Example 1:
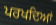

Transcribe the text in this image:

ਪਰਖਦਿਆਂ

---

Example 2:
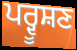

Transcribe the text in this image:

ਪਰ੍ਦੂਸ਼ਣ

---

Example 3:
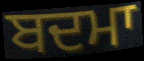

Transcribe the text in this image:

ਬਦਮਾ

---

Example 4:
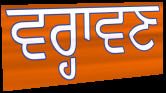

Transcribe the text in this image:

ਵਰ੍ਹਾਵਣ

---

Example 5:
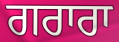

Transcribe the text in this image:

ਗਰਾਰਾ